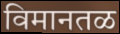
विमानतळ